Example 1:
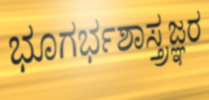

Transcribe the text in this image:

ಭೂಗರ್ಭಶಾಸ್ತ್ರಜ್ಞರ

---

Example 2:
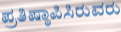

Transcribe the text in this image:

ಪ್ರತಿಷ್ಠಾಪಿಸಿರುವರು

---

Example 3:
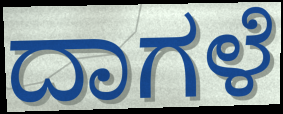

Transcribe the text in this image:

ದಾಗಳೆ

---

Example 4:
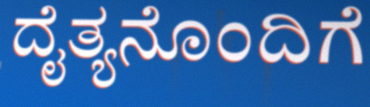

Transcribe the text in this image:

ದೈತ್ಯನೊಂದಿಗೆ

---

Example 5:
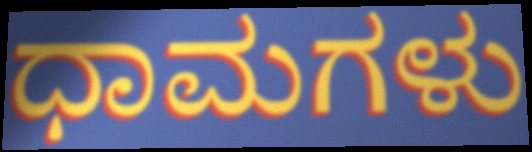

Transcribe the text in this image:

ಧಾಮಗಳು